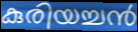
കുരിയച്ചൻ